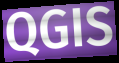
QGIS